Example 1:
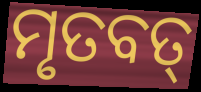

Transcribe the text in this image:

ମୃତବତ୍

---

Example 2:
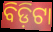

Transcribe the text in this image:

ବିଡ଼ିଟା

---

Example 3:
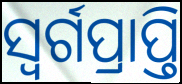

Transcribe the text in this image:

ସ୍ୱର୍ଗପ୍ରାପ୍ତି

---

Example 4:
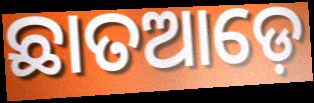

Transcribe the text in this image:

ଛାତଆଡ଼େ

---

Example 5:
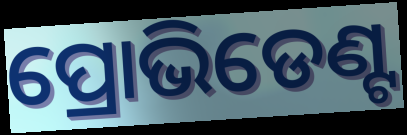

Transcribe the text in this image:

ପ୍ରୋଭିଡେଣ୍ଟ